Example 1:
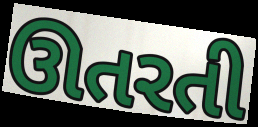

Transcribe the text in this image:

ઊતરતી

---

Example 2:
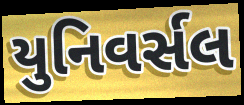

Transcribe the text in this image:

યુનિવર્સલ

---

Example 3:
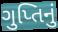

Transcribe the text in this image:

ગુપ્તિનું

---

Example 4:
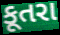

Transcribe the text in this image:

કૂતરા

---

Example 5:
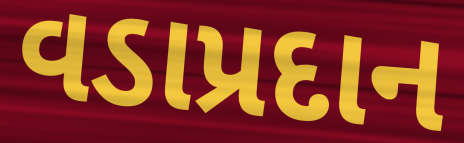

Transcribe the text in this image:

વડાપ્રદાન